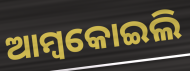
ଆମ୍ବକୋଇଲି